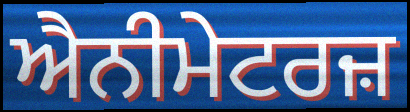
ਐਨੀਮੇਟਰਜ਼